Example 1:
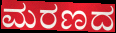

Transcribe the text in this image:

ಮರಣದ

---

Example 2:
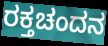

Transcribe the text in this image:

ರಕ್ತಚಂದನ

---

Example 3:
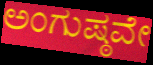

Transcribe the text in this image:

ಅಂಗುಷ್ಠವೇ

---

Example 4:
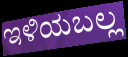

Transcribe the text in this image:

ಇಳಿಯಬಲ್ಲ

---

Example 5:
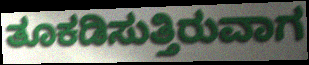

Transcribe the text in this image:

ತೂಕಡಿಸುತ್ತಿರುವಾಗ